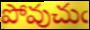
పోవుచుఁ